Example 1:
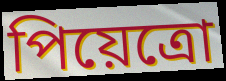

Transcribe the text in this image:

পিয়েত্রো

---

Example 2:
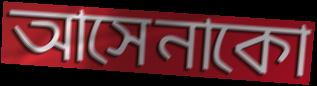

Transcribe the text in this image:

আসেনাকো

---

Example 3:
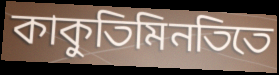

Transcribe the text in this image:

কাকুতিমিনতিতে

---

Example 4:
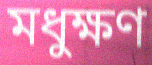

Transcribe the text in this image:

মধুক্ষণ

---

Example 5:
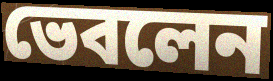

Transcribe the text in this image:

ভেবলেন